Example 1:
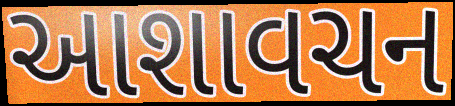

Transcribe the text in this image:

આશાવચન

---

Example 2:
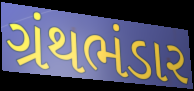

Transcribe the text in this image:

ગ્રંથભંડાર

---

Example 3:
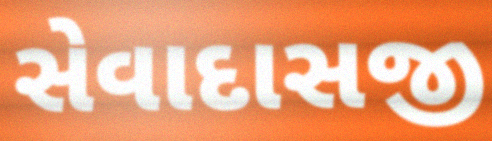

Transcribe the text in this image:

સેવાદાસજી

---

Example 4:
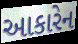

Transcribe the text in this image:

આકારેન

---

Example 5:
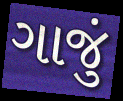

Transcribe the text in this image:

ગાજું